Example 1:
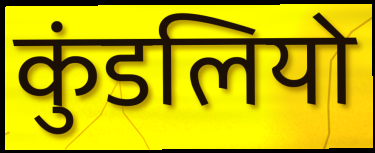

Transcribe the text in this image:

कुंडलियो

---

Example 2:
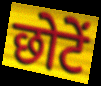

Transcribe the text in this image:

छोटें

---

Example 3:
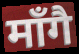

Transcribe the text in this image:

माँगै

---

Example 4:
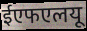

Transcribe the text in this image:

ईएफएलयू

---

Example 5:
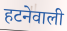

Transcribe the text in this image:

हटनेवाली